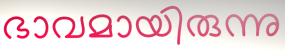
ഭാവമായിരുന്നു